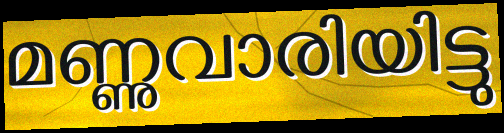
മണ്ണുവാരിയിട്ടു